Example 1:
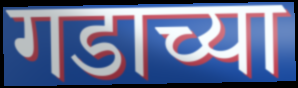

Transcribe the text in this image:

गडाच्या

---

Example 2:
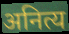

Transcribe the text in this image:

अनित्य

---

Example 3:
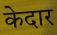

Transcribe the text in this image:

केदार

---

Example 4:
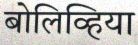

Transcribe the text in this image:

बोलिव्हिया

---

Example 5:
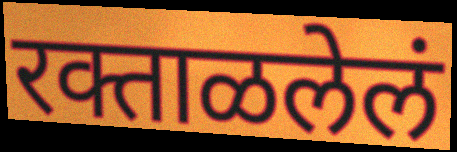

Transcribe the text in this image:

रक्ताळलेलं